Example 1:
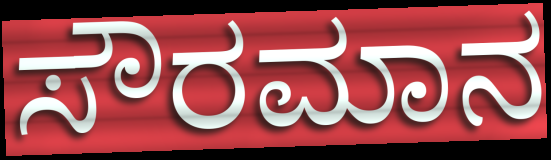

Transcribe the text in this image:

ಸೌರಮಾನ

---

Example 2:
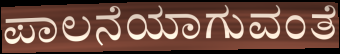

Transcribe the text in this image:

ಪಾಲನೆಯಾಗುವಂತೆ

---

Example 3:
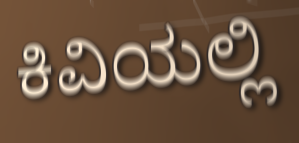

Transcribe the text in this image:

ಕಿವಿಯಲ್ಲಿ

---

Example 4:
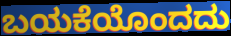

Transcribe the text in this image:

ಬಯಕೆಯೊಂದದು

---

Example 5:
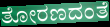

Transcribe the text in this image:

ತೋರಣದಂತೆ